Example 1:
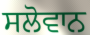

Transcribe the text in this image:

ਸਲੋਵਾਨ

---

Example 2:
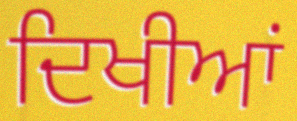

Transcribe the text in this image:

ਦਿਖੀਆਂ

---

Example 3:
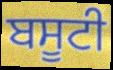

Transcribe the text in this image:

ਬਸੂਟੀ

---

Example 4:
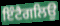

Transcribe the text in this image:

ਇੰਟੈਗਲਿਉ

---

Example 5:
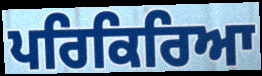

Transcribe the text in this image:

ਪਰਿਕਿਰਿਆ